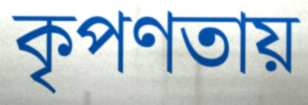
কৃপণতায়